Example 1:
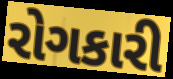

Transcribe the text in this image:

રોગકારી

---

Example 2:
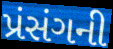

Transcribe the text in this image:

પ્રંસંગની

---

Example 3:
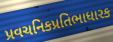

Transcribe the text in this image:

પ્રવચનિકપ્રતિભાધારક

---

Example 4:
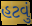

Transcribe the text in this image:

હટવું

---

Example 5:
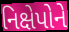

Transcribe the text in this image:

નિક્ષેપોને